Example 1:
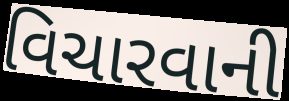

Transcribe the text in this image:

વિચારવાની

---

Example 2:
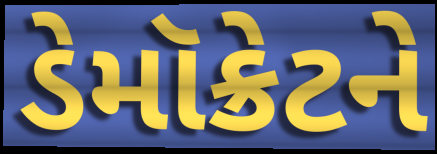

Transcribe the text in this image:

ડેમૉક્રેટને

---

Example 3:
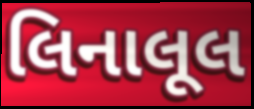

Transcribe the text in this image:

લિનાલૂલ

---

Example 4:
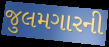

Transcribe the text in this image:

જુલમગારની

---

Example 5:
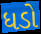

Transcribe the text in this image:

ધડો